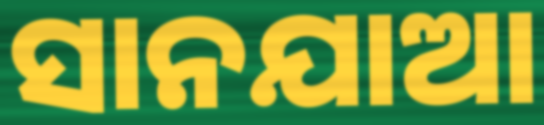
ସାନଯାଆ